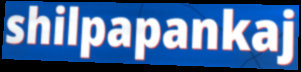
shilpapankaj